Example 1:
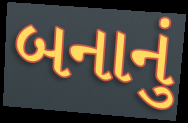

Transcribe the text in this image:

બનાનું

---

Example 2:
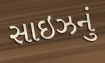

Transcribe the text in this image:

સાઇઝનું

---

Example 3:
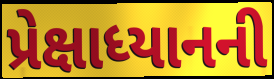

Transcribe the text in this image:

પ્રેક્ષાધ્યાનની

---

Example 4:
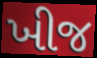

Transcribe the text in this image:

ખીજ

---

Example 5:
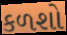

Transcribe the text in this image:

કળશો